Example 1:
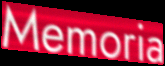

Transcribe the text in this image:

Memoria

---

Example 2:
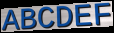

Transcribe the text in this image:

ABCDEF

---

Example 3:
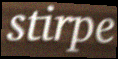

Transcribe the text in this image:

stirpe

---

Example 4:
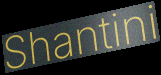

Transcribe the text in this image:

Shantini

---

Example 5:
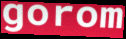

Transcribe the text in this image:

gorom